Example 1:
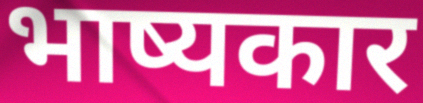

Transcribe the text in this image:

भाष्यकार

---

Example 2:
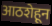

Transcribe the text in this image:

आठशेहून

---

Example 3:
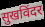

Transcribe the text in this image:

सुखविंदर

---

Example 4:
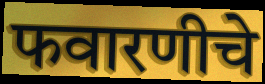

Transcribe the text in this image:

फवारणीचे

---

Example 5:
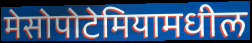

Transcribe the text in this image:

मेसोपोटेमियामधील